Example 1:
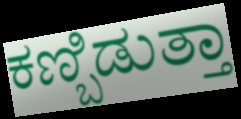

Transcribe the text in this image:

ಕಣ್ಬಿಡುತ್ತಾ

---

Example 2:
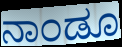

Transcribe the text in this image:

ನಾಂಡೂ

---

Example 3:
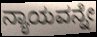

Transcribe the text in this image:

ನ್ಯಾಯವನ್ನೇ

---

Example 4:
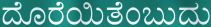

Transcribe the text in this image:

ದೊರೆಯಿತೆಂಬುದು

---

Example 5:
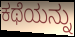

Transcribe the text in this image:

ಕಥೆಯನ್ನು